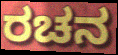
ರಚನ